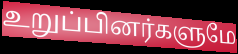
உறுப்பினர்களுமே